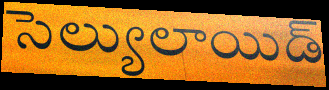
సెల్యులాయిడ్